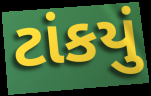
ટાંકયું